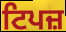
ਟਿਪਜ਼